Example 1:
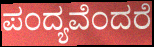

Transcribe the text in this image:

ಪಂದ್ಯವೆಂದರೆ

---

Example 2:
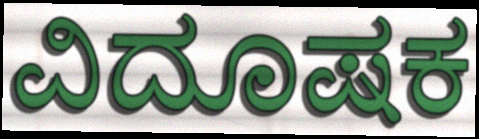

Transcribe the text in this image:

ವಿದೂಷಕ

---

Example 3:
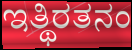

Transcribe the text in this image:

ಇತ್ಥಿರತನಂ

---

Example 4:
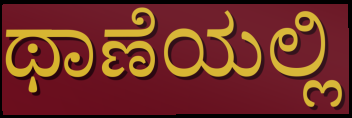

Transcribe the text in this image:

ಥಾಣೆಯಲ್ಲಿ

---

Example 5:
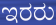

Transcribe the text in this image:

ಇರರು